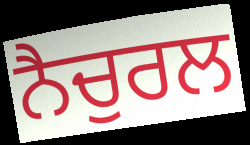
ਨੈਚੁਰਲ